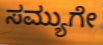
ಸಮ್ಯುಗೇ